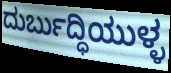
ದುರ್ಬುದ್ಧಿಯುಳ್ಳ